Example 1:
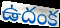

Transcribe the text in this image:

ఉదంక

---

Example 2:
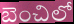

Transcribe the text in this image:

బెంచిలో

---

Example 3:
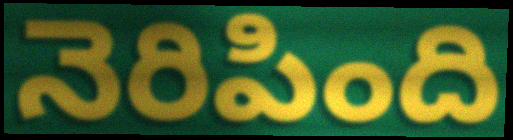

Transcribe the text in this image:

నెరిపింది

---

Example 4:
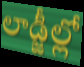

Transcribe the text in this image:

లాడ్జీల్లో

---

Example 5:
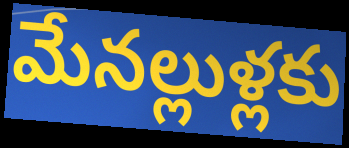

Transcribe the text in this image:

మేనల్లుళ్లకు